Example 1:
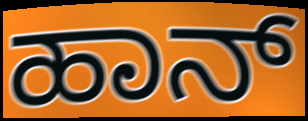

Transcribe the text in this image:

ಹಾನ್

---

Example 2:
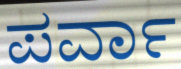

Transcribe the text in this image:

ಪರ್ವಾ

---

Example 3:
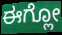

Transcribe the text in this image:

ಈಗ್ಲೋ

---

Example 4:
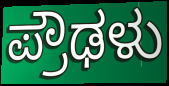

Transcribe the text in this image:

ಪ್ರೌಢಳು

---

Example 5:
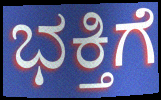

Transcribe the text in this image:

ಭಕ್ತಿಗೆ